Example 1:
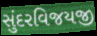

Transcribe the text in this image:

સુંદરવિજયજી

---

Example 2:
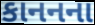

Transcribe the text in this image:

કાનનના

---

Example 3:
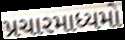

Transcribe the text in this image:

પ્રચારમાધ્યમો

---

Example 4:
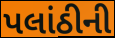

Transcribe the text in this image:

પલાંઠીની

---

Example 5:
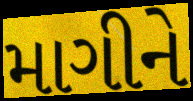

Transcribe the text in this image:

માગીને